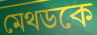
মেথডকে